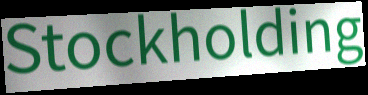
Stockholding